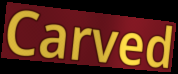
Carved